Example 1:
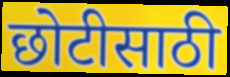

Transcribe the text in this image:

छोटीसाठी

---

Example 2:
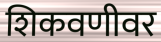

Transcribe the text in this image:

शिकवणीवर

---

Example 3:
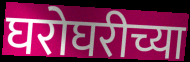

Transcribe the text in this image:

घरोघरीच्या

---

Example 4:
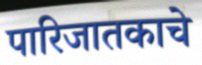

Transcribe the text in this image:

पारिजातकाचे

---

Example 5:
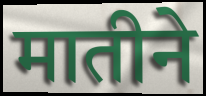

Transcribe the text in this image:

मातीने